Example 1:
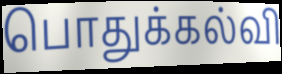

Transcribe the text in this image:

பொதுக்கல்வி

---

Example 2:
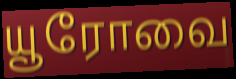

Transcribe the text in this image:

யூரோவை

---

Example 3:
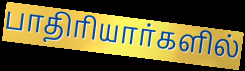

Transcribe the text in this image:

பாதிரியார்களில்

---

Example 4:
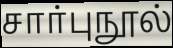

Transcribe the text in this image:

சார்புநூல்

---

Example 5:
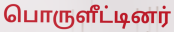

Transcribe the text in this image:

பொருளீட்டினர்